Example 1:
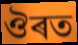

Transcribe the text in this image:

ঔৰত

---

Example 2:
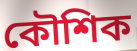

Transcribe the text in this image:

কৌশিক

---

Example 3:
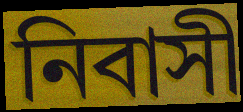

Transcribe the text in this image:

নিবাসী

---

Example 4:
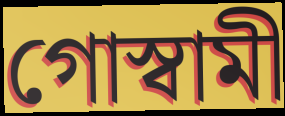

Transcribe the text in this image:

গোস্বামী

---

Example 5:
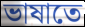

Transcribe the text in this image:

ভাষাতে